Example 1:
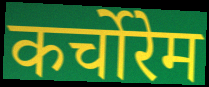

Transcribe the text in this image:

कर्चोरेम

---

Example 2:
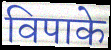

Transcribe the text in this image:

विपाके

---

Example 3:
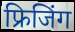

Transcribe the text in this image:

फ्रिजिंग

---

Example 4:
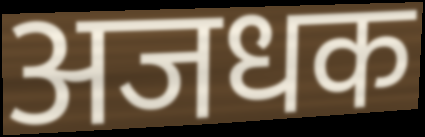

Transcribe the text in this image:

अजधक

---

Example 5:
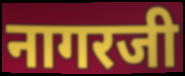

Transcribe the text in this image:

नागरजी